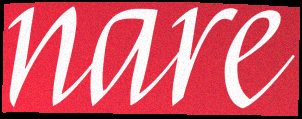
nare